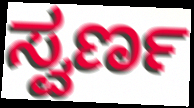
ಸ್ವರ್ಣ